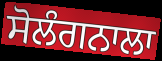
ਸੋਲੰਗਨਾਲਾ